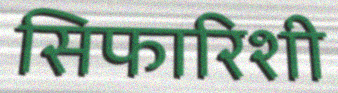
सिफारिशी